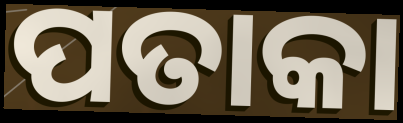
ପତାକା